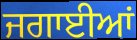
ਜਗਾਈਆਂ